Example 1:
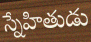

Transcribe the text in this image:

స్నేహితుడు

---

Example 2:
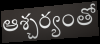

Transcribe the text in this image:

ఆశ్చర్యంతో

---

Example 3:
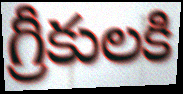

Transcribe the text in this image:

గ్రీకులకి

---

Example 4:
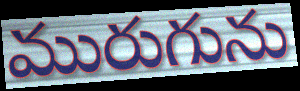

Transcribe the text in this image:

మురుగును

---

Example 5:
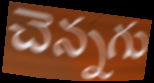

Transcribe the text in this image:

చెన్నగు